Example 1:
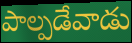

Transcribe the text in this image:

పాల్పడేవాడు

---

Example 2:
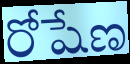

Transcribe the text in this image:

రోషేణ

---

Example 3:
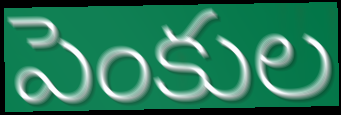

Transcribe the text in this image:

పెంకుల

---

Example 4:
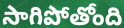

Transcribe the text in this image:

సాగిపోతోంది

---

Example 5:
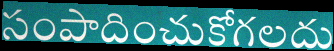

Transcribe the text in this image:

సంపాదించుకోగలదు